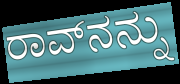
ರಾವ್‌ನನ್ನು